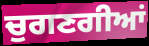
ਚੁਗਣਗੀਆਂ